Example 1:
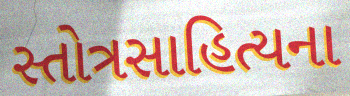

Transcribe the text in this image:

સ્તોત્રસાહિત્યના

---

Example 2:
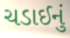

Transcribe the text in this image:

ચડાઈનું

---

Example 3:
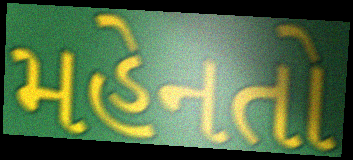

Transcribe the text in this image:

મહેનતો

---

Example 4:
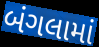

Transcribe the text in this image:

બંગલામાં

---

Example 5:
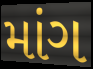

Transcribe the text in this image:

માંગ